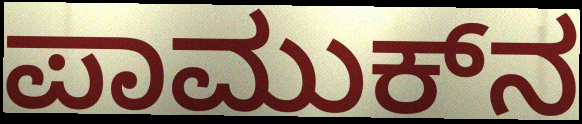
ಪಾಮುಕ್‍ನ